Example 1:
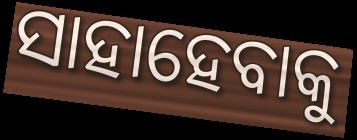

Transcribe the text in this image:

ସାହାହେବାକୁ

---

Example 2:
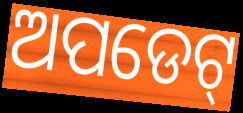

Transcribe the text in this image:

ଅପଡେଟ୍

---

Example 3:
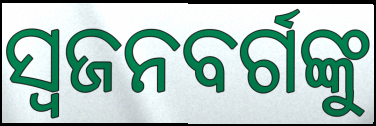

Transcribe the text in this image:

ସ୍ଵଜନବର୍ଗଙ୍କୁ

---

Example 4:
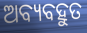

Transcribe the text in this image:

ଅବ୍ୟବହୁତ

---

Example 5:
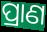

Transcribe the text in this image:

ପ୍ରାଣ